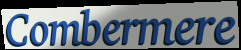
Combermere